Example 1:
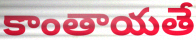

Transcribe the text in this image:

కాంతాయతే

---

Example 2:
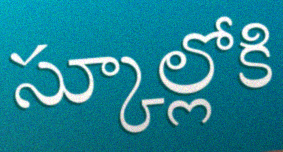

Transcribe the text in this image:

స్కూల్లోకి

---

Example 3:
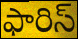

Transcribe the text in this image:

ఫారిస్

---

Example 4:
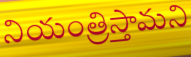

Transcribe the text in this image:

నియంత్రిస్తామని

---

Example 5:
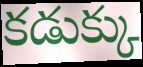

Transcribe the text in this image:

కడుక్కు